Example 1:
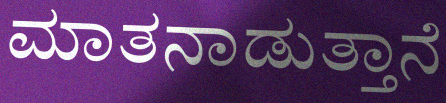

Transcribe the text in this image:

ಮಾತನಾಡುತ್ತಾನೆ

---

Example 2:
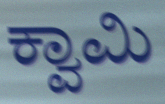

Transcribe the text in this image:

ಕ್ವಾಮಿ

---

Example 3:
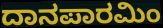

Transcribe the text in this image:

ದಾನಪಾರಮಿಂ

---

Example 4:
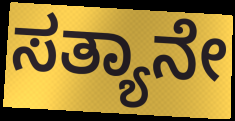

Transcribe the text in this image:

ಸತ್ಯಾನೇ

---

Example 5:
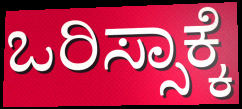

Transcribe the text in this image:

ಒರಿಸ್ಸಾಕ್ಕೆ